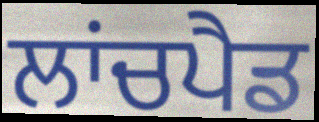
ਲਾਂਚਪੈਡ